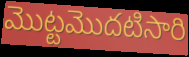
మొట్టమొదటిసారి